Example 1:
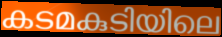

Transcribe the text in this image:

കടമകുടിയിലെ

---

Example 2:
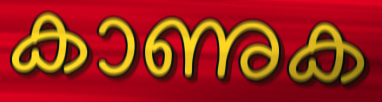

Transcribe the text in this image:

കാണുക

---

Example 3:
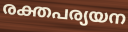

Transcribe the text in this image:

രക്തപര്യയന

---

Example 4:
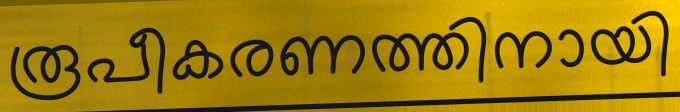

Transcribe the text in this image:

രൂപീകരണത്തിനായി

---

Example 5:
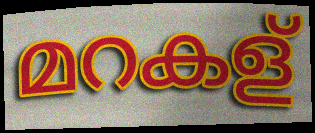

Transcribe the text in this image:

മറകള്